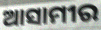
ଆସାମୀର